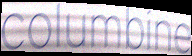
columbine